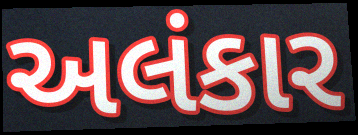
અલંકાર